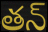
తన్